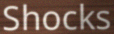
Shocks